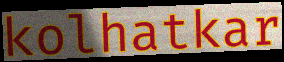
kolhatkar